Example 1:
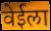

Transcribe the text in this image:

वेईला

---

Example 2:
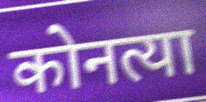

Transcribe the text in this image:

कोनत्या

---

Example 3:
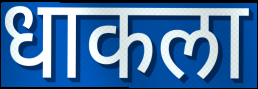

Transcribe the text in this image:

धाकला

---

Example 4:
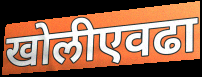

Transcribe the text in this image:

खोलीएवढा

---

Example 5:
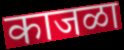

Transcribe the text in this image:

काजळा